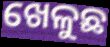
ଖେଳୁଛ